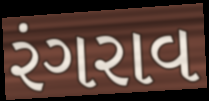
રંગરાવ